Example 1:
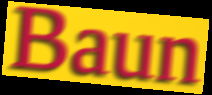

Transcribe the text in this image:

Baun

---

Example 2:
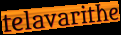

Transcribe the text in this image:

telavarithe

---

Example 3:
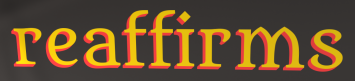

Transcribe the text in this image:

reaffirms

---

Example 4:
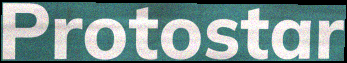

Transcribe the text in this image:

Protostar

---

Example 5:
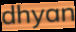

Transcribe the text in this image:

dhyan